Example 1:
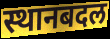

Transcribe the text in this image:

स्थानबदल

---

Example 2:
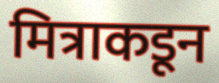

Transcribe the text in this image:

मित्राकडून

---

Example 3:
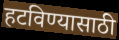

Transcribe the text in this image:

हटविण्यासाठी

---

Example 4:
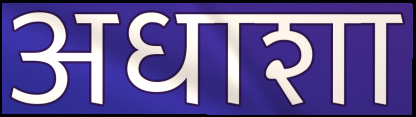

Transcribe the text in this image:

अधाशा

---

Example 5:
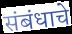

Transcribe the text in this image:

संबंधाचे